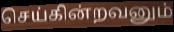
செய்கின்றவனும்